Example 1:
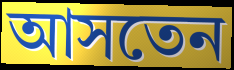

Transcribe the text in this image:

আসতেন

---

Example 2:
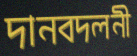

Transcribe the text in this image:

দানবদলনী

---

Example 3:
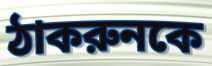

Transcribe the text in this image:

ঠাকরুনকে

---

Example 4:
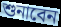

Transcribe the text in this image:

শুনাবেন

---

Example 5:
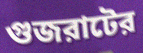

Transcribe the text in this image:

গুজরাটের